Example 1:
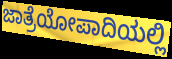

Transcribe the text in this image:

ಜಾತ್ರೆಯೋಪಾದಿಯಲ್ಲಿ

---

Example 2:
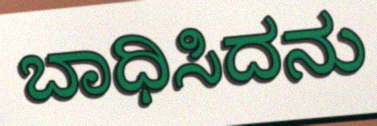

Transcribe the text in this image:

ಬಾಧಿಸಿದನು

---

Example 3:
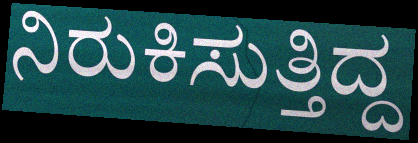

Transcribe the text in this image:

ನಿರುಕಿಸುತ್ತಿದ್ದ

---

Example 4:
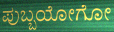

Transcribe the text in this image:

ಪುಬ್ಬಯೋಗೋ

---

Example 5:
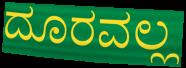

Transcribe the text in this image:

ದೂರವಲ್ಲ